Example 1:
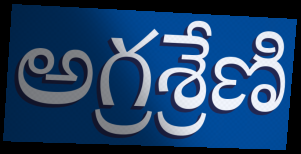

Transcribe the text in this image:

అగ్రశ్రేణి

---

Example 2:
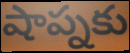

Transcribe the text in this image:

షాప్నకు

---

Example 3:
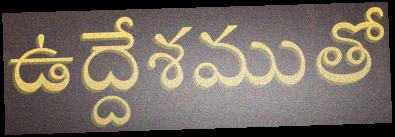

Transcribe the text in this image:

ఉద్దేశముతో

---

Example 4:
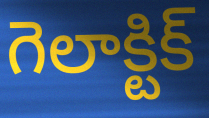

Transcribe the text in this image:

గెలాక్టిక్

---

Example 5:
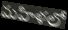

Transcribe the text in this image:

మహిళలో